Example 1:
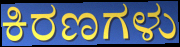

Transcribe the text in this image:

ಕಿರಣಗಳು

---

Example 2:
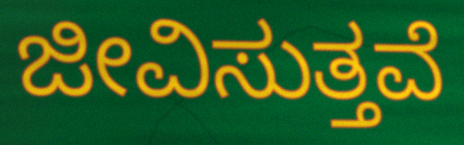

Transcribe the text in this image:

ಜೀವಿಸುತ್ತವೆ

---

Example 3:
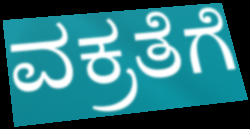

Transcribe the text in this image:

ವಕ್ರತೆಗೆ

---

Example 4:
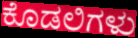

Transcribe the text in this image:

ಕೊಡಲಿಗಳು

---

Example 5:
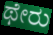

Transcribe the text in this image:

ಥೇರು